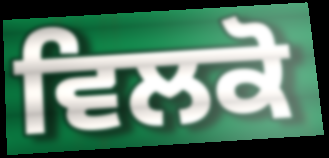
ਵਿਲਕੋ